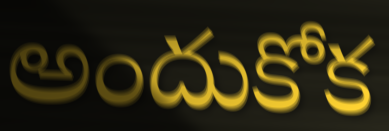
అందుకోక